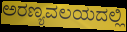
ಅರಣ್ಯವಲಯದಲ್ಲಿ